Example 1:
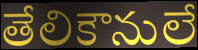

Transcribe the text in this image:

తేలికౌనులే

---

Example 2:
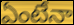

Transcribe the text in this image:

ఏంటేనా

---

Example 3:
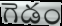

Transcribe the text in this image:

గెడం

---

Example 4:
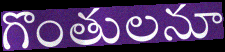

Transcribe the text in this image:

గొంతులనూ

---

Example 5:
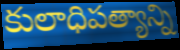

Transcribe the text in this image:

కులాధిపత్యాన్ని